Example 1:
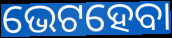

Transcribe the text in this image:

ଭେଟହେବା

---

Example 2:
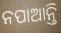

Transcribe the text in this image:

ନପାଆନ୍ତି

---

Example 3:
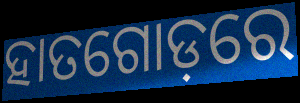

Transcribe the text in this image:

ହାତଗୋଡ଼ରେ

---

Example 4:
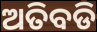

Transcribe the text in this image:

ଅତିବଡି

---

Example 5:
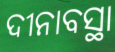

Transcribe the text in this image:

ଦୀନାବସ୍ଥା